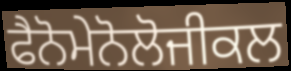
ਫੈਨੋਮੇਨੋਲੋਜੀਕਲ